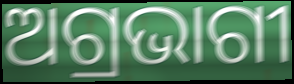
ଅଗ୍ରଭାଗୀ